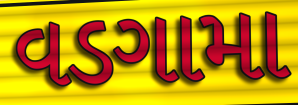
વડગામા